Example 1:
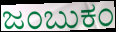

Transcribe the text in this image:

ಜಂಬುಕಂ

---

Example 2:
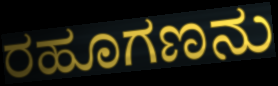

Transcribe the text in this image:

ರಹೂಗಣನು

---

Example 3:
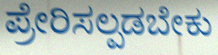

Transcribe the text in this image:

ಪ್ರೇರಿಸಲ್ಪಡಬೇಕು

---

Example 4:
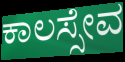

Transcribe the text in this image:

ಕಾಲಸ್ಸೇವ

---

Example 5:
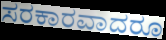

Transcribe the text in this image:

ಸರಕಾರವಾದರೂ